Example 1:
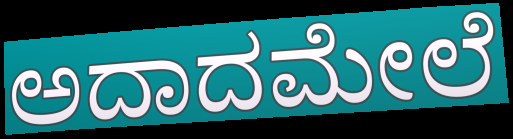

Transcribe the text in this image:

ಅದಾದಮೇಲೆ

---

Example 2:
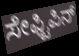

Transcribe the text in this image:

ಸೇಫ್ಟಿಪಿನ್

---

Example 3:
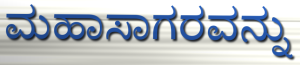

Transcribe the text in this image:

ಮಹಾಸಾಗರವನ್ನು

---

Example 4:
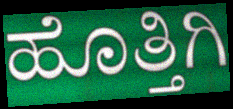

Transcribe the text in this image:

ಹೊತ್ತಿಗಿ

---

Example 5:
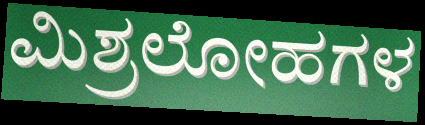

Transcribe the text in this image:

ಮಿಶ್ರಲೋಹಗಳ